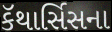
કૅથાર્સિસના